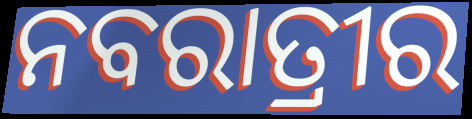
ନବରାତ୍ରୀର